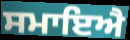
ਸਮਾਇਐ